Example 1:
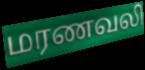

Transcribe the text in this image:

மரணவலி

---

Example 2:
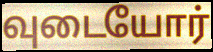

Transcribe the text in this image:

வுடையோர்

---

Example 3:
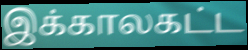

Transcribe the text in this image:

இக்காலகட்ட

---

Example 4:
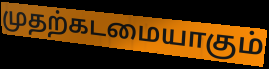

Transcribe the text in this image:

முதற்கடமையாகும்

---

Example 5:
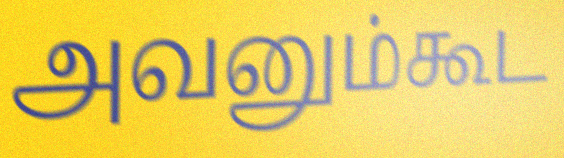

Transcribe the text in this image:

அவனும்கூட